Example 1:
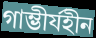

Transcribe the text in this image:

গাম্ভীর্যহীন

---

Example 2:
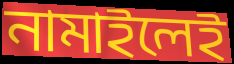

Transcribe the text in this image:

নামাইলেই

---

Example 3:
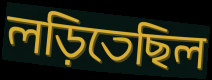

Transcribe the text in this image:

লড়িতেছিল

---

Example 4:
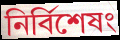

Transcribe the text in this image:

নির্বিশেষং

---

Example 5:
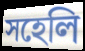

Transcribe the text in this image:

সহেলি